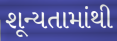
શૂન્યતામાંથી